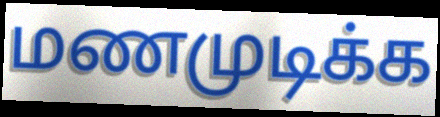
மணமுடிக்க